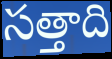
సత్తాది